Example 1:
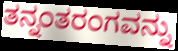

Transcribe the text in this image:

ತನ್ನಂತರಂಗವನ್ನು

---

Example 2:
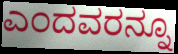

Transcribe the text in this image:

ಎಂದವರನ್ನೂ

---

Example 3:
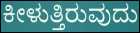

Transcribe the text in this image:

ಕೀಳುತ್ತಿರುವುದು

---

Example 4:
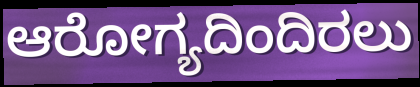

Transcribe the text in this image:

ಆರೋಗ್ಯದಿಂದಿರಲು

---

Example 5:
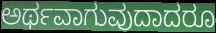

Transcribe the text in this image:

ಅರ್ಥವಾಗುವುದಾದರೂ